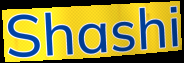
Shashi